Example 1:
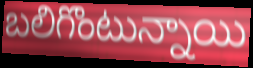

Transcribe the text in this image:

బలిగొంటున్నాయి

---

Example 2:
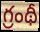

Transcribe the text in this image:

గ్రంథీ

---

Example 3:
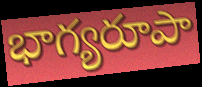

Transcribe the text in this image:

భాగ్యరూపా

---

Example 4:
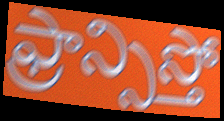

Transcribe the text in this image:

ఫ్రాన్సిస్తో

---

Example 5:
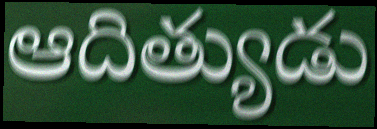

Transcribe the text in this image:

ఆదిత్యుడు